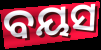
ବୟସ